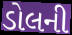
ડોલની